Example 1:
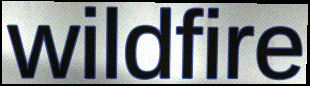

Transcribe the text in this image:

wildfire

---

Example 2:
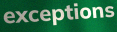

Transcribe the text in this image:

exceptions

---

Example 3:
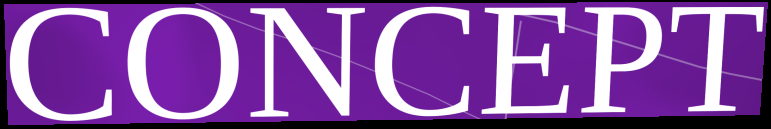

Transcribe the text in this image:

CONCEPT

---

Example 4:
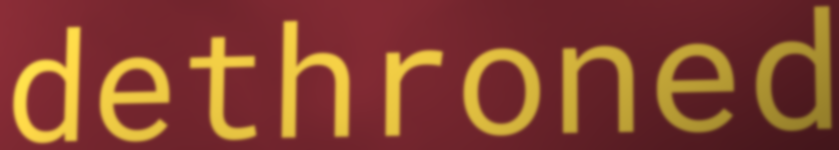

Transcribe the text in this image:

dethroned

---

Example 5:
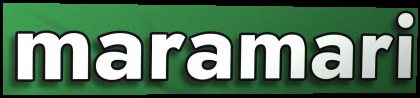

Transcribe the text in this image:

maramari